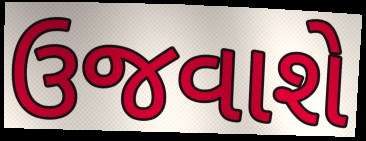
ઉજવાશે